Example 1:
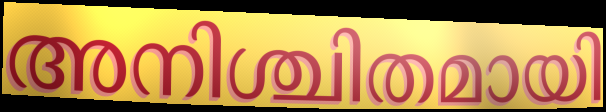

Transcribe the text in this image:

അനിശ്ചിതമായി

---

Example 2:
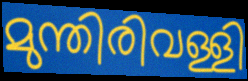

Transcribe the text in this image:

മുന്തിരിവള്ളി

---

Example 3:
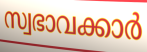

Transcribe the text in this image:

സ്വഭാവക്കാർ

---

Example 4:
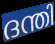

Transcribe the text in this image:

ദന്തി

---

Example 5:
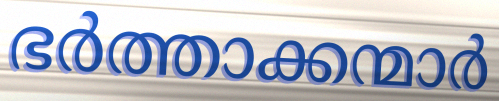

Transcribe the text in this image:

ഭർത്താക്കന്മാർ